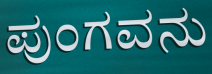
ಪುಂಗವನು